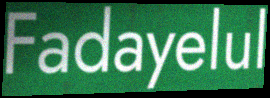
Fadayelul